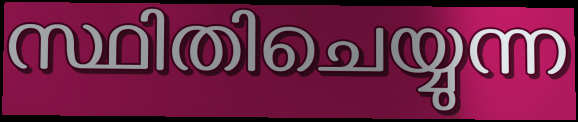
സ്ഥിതിചെയ്യുന്ന